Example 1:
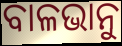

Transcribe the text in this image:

ବାଳଭାନୁ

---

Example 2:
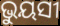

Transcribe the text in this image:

ଭୁୟସୀ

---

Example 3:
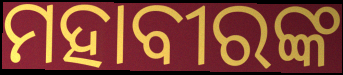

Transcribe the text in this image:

ମହାବୀରଙ୍କ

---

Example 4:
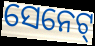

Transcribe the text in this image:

ସେନେଟ୍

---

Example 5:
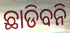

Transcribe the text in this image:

ଛାଡିବନି